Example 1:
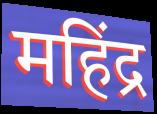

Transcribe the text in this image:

महिंद्र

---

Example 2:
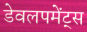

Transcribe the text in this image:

डेवलपमेंट्स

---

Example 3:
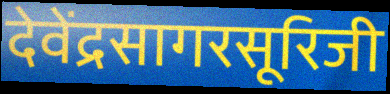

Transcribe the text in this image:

देवेंद्रसागरसूरिजी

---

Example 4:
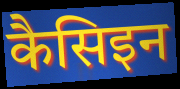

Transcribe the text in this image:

कैसिइन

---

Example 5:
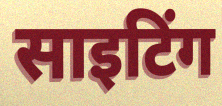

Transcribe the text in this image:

साइटिंग